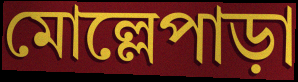
মোল্লেপাড়া